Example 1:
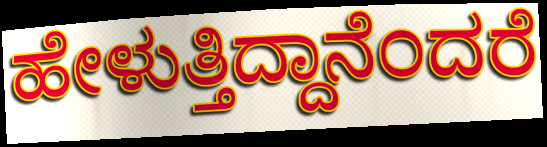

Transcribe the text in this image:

ಹೇಳುತ್ತಿದ್ದಾನೆಂದರೆ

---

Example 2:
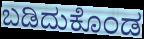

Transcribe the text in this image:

ಬಡಿದುಕೊಂಡ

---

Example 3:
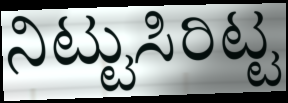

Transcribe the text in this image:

ನಿಟ್ಟುಸಿರಿಟ್ಟ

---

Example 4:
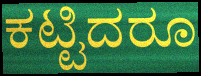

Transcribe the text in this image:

ಕಟ್ಟಿದರೂ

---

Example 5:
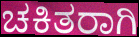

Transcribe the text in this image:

ಚಕಿತರಾಗಿ